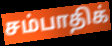
சம்பாதிக்